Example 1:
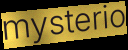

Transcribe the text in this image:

mysterio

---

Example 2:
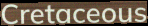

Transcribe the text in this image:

Cretaceous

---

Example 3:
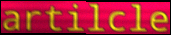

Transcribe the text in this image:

artilcle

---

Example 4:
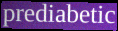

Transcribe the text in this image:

prediabetic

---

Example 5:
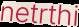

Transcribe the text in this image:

netrthi